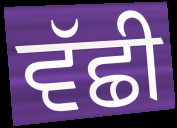
ਵੱਛੀ